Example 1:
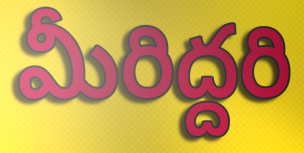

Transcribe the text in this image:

మీరిద్దరి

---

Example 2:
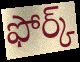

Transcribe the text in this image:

ఫోర్క్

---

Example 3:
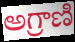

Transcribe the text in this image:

అగ్రాణి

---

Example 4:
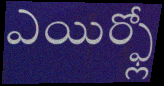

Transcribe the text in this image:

ఎయిర్ఫ్లో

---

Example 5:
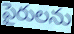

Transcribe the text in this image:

పైరులను